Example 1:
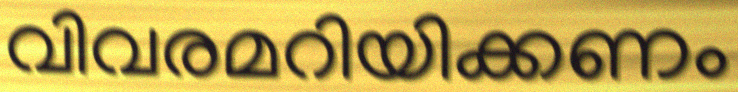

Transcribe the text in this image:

വിവരമറിയിക്കണം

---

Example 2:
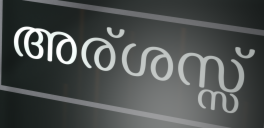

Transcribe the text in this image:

അര്ശസ്സ്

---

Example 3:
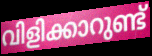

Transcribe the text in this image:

വിളിക്കാറുണ്ട്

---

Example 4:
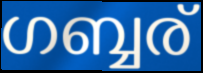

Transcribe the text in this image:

ഗബ്ബര്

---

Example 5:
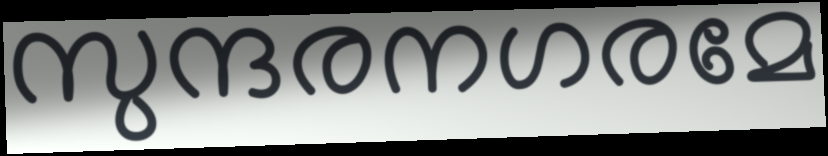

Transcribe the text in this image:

സുന്ദരനഗരമേ